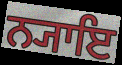
ਨ੍ਯਾਇ